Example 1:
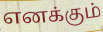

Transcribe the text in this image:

எனக்கும்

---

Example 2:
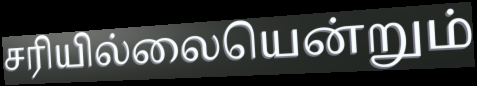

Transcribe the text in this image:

சரியில்லையென்றும்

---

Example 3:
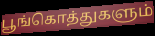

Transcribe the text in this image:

பூங்கொத்துகளும்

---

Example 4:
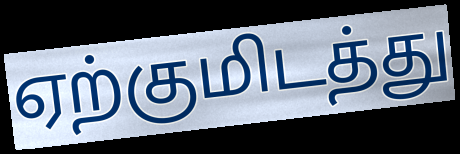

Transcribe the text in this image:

ஏற்குமிடத்து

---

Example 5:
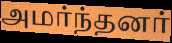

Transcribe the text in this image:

அமர்ந்தனர்